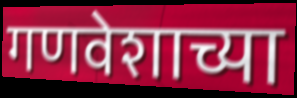
गणवेशाच्या